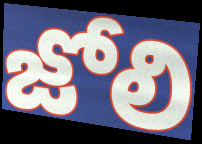
జోలి